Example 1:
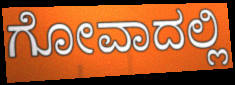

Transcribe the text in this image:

ಗೋವಾದಲ್ಲಿ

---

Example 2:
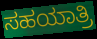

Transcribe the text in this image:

ಸಹಯಾತ್ರಿ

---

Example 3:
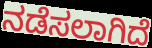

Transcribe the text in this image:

ನಡೆಸಲಾಗಿದೆ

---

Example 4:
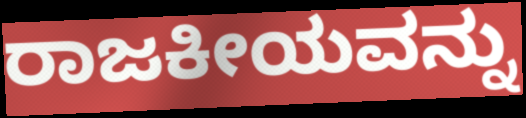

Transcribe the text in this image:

ರಾಜಕೀಯವನ್ನು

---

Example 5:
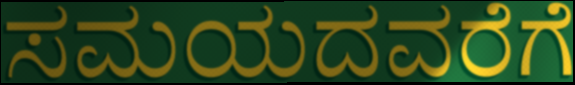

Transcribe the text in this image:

ಸಮಯದವರೆಗೆ